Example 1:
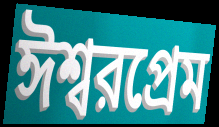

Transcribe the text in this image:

ঈশ্বরপ্রেম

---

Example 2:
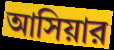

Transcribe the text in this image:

আসিয়ার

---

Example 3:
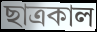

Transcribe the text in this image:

ছাত্রকাল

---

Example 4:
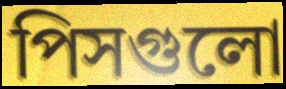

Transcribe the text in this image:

পিসগুলো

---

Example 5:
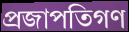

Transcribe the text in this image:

প্রজাপতিগণ